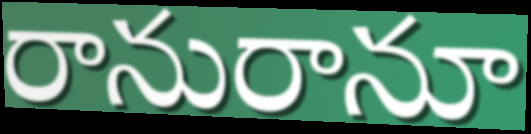
రానురానూ